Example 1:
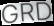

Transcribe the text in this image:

GRD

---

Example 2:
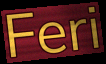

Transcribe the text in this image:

Feri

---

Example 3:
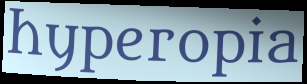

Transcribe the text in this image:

hyperopia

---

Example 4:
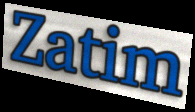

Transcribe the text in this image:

Zatim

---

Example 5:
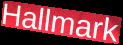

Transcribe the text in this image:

Hallmark